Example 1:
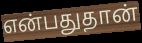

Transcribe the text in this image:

என்பதுதான்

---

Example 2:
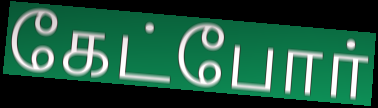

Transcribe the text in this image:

கேட்போர்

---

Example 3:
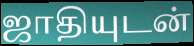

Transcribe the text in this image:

ஜாதியுடன்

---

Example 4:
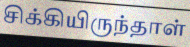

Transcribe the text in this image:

சிக்கியிருந்தாள்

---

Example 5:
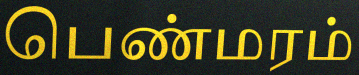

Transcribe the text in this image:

பெண்மரம்